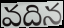
వదిన